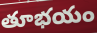
తూభయం